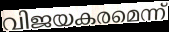
വിജയകരമെന്ന്